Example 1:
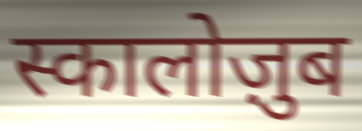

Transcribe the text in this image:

स्कालोज़ुब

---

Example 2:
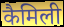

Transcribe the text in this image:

कैमिली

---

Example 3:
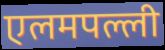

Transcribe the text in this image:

एलमपल्ली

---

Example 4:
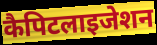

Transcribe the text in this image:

कैपिटलाइजेशन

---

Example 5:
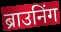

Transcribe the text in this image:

ब्राउनिंग